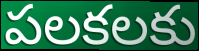
పలకలకు